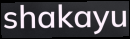
shakayu